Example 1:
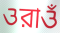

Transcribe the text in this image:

ওরাওঁ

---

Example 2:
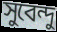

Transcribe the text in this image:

সুবেন্দু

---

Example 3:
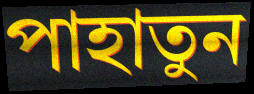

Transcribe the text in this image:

পাহাতুন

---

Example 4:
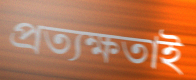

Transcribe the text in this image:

প্রত্যক্ষতাই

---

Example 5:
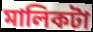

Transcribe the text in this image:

মালিকটা